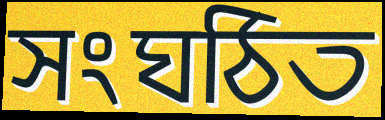
সংঘঠিত